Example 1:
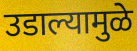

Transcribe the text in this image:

उडाल्यामुळे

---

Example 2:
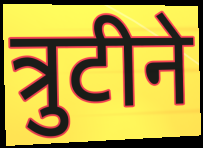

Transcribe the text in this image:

त्रुटीने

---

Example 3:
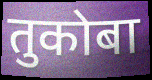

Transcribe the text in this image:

तुकोबा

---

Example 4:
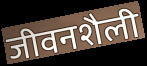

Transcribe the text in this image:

जीवनशैली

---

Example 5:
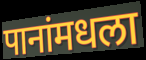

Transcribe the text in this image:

पानांमधला